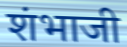
शंभाजी